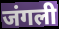
जंगली